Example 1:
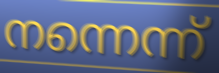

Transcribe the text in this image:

നന്നെന്ന്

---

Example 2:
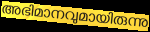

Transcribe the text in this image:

അഭിമാനവുമായിരുന്നു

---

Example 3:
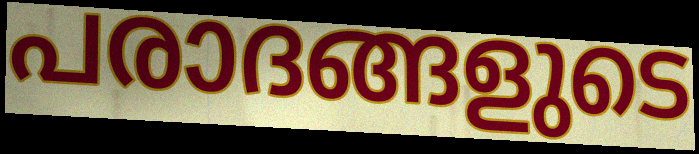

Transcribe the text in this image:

പരാദങ്ങളുടെ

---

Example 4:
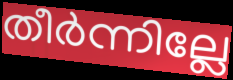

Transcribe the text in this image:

തീർന്നില്ലേ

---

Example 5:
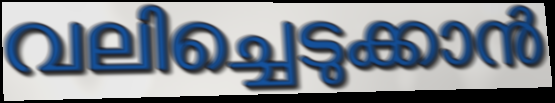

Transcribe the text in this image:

വലിച്ചെടുക്കാൻ